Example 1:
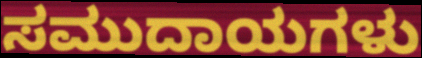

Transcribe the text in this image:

ಸಮುದಾಯಗಳು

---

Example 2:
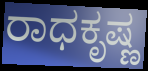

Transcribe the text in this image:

ರಾಧಕೃಷ್ಣ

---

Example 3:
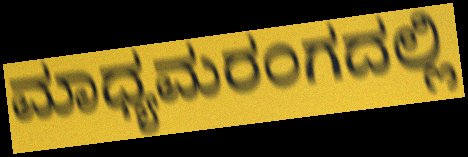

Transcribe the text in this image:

ಮಾಧ್ಯಮರಂಗದಲ್ಲಿ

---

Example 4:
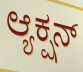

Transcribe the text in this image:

ಆ್ಯಕ್ಷನ್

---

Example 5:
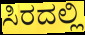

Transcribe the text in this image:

ಸಿರದಲ್ಲಿ